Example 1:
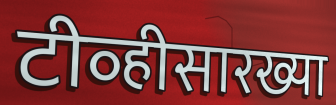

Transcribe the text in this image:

टीव्हीसारख्या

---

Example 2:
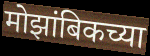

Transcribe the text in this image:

मोझांबिकच्या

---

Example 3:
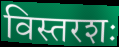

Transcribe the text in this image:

विस्तरशः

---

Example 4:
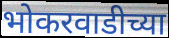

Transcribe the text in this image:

भोकरवाडीच्या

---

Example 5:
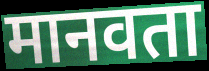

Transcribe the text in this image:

मानवता